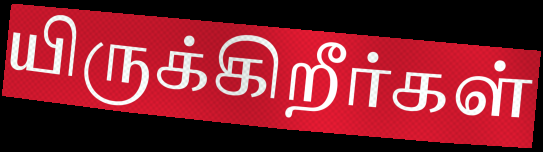
யிருக்கிறீர்கள்